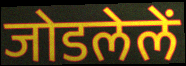
जोडलेलें